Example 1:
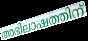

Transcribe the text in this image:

അഭിലാഷത്തിന്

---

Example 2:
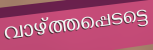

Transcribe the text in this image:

വാഴ്ത്തപ്പെടട്ടെ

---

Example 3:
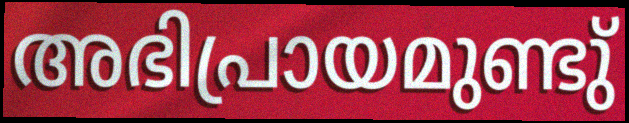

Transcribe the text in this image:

അഭിപ്രായമുണ്ടു്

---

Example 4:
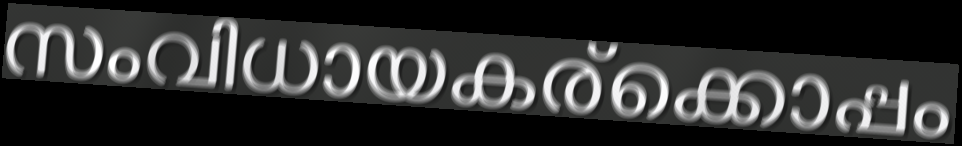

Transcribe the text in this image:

സംവിധായകര്ക്കൊപ്പം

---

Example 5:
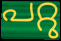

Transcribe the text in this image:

പറ്റു